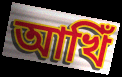
আখিঁ